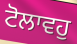
ਟੋਲਾਵਹੁ